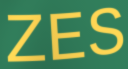
ZES